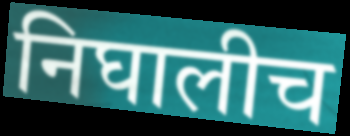
निघालीच